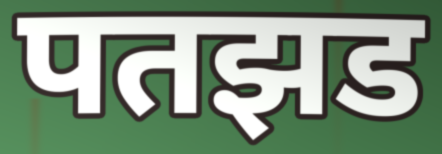
पतझड